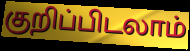
குறிப்பிடலாம்